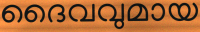
ദൈവവുമായ